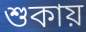
শুকায়